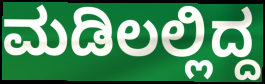
ಮಡಿಲಲ್ಲಿದ್ದ